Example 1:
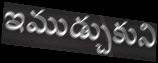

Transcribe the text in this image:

ఇముడ్చుకుని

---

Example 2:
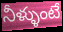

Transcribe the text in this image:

నీళ్ళుంటే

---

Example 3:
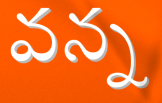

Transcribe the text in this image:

వన్న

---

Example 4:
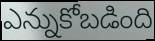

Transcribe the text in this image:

ఎన్నుకోబడింది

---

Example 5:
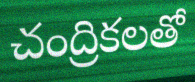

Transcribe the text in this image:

చంద్రికలతో